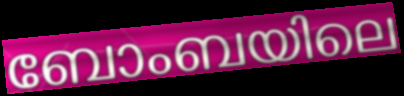
ബോംബയിലെ